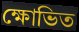
ক্ষোভিত